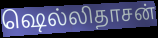
ஷெல்லிதாசன்